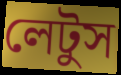
লেটুস